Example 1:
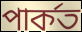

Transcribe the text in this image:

পাৰ্কত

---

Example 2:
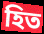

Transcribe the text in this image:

হিত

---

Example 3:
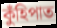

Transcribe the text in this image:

কুঁহিপাত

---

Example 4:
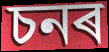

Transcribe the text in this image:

চনৰ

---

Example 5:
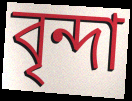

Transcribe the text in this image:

বৃন্দা